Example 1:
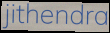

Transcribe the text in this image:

jithendra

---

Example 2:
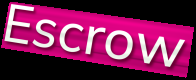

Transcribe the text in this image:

Escrow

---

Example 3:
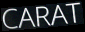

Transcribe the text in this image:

CARAT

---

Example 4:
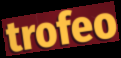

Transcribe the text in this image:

trofeo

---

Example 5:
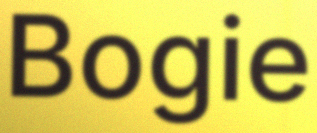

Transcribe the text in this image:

Bogie